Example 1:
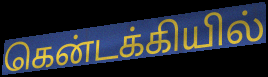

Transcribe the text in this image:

கென்டக்கியில்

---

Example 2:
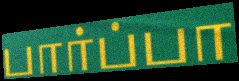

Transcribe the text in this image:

பார்ப்பா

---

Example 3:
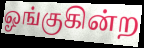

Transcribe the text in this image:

ஓங்குகின்ற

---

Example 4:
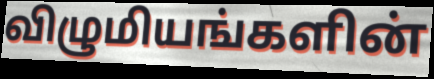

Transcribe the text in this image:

விழுமியங்களின்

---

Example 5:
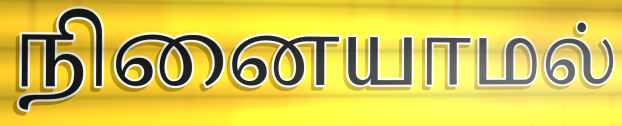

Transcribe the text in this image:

நினையாமல்